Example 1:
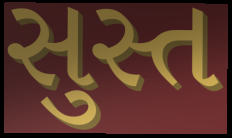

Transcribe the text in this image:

સુસ્ત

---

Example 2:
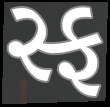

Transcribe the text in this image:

સ્ફ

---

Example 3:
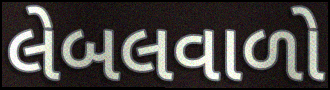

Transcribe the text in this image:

લેબલવાળો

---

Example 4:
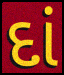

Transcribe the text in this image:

દાં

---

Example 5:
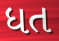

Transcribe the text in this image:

ધત